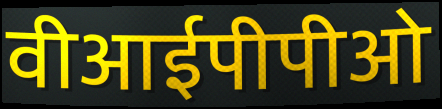
वीआईपीपीओ